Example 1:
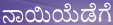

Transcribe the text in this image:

ನಾಯಿಯೆಡೆಗೆ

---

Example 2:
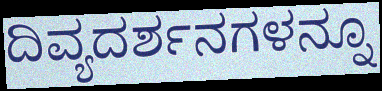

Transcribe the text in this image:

ದಿವ್ಯದರ್ಶನಗಳನ್ನೂ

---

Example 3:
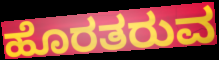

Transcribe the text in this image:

ಹೊರತರುವ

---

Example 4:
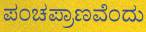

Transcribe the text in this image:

ಪಂಚಪ್ರಾಣವೆಂದು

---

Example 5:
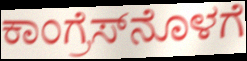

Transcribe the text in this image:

ಕಾಂಗ್ರೆಸ್‌ನೊಳಗೆ